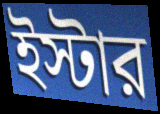
ইস্টার